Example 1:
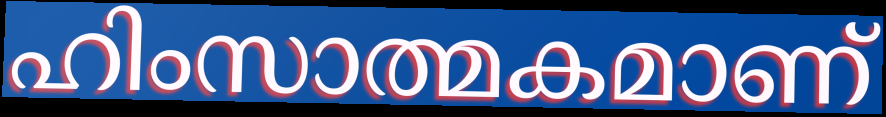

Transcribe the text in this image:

ഹിംസാത്മകമാണ്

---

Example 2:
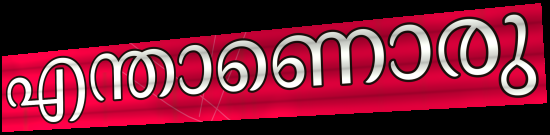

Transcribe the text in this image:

എന്താണൊരു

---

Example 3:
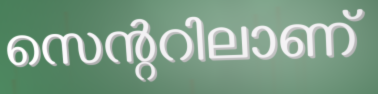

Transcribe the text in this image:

സെന്ററിലാണ്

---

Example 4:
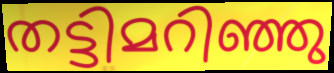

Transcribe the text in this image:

തട്ടിമറിഞ്ഞു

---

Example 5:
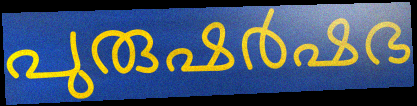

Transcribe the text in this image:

പുരുഷർഷഭ